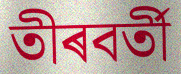
তীৰবৰ্তী